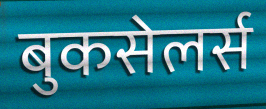
बुकसेलर्स